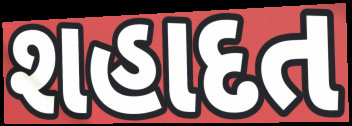
શહાદત